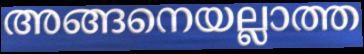
അങ്ങനെയല്ലാത്ത